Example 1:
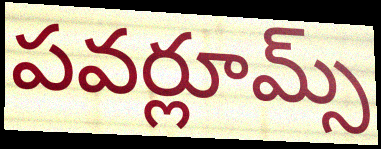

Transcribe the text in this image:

పవర్లూమ్స్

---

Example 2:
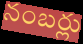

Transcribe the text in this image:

నంబర్లు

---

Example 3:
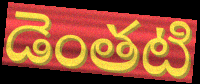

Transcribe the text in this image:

డెంతటి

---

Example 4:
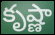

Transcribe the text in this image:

కృష్ణా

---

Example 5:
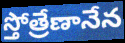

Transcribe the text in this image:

స్తోత్రేణానేన